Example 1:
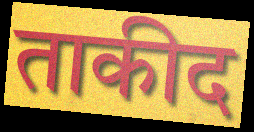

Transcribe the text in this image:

ताकीद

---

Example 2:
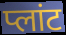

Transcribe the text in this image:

प्‍लांट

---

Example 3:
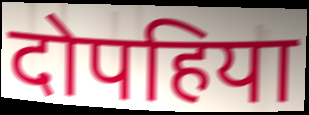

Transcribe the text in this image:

दोपहिया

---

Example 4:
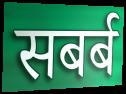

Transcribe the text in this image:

सबर्ब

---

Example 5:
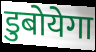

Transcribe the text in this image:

डुबोयेगा